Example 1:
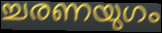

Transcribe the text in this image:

ച്ചരണയുഗം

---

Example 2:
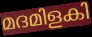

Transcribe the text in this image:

മദമിളകി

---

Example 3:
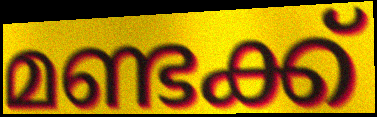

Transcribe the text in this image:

മണ്ടക്ക്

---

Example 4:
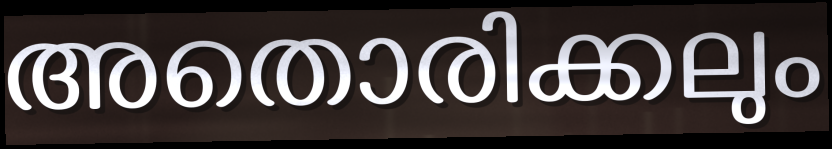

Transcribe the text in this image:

അതൊരിക്കലും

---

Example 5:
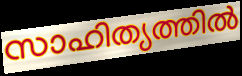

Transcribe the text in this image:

സാഹിത്യത്തിൽ